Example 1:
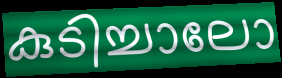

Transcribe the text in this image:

കുടിച്ചാലോ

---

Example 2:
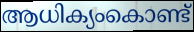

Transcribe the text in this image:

ആധിക്യംകൊണ്ട്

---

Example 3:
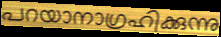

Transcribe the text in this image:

പറയാനാഗ്രഹിക്കുന്നു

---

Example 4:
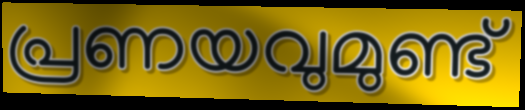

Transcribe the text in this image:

പ്രണയവുമുണ്ട്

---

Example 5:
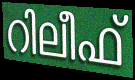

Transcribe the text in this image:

റിലീഫ്